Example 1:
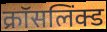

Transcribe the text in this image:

क्रॉसलिंक्ड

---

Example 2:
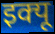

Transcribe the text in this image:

इक्यू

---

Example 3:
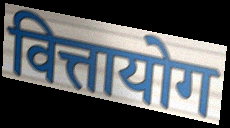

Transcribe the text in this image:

वित्तायोग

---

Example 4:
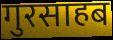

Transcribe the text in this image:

गुरसाहब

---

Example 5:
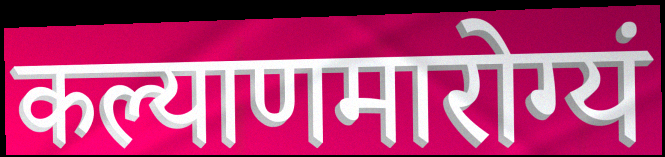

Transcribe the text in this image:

कल्याणमारोग्यं